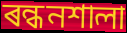
ৰন্ধনশালা